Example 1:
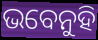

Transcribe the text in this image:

ଭବେନୁହି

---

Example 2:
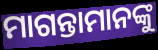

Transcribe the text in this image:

ମାଗନ୍ତାମାନଙ୍କୁ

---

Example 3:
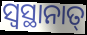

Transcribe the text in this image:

ସ୍ଵସ୍ଥାନାତ୍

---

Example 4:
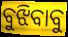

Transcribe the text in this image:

ବୁଝିବାବୁ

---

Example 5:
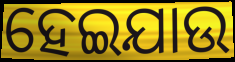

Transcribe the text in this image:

ହେଇଯାଉ